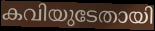
കവിയുടേതായി